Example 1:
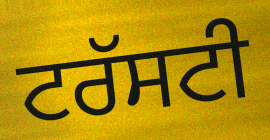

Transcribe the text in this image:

ਟਰੱਸਟੀ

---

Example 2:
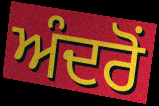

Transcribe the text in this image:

ਅੰਦਰੋਂ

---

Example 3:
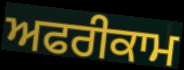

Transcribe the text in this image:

ਅਫਰੀਕਾਮ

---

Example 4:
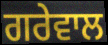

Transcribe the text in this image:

ਗਰੇਵਾਲ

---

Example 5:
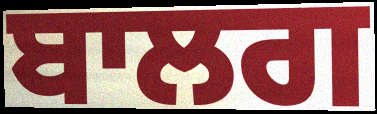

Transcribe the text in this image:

ਬਾਲਗ